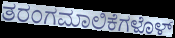
ತರಂಗಮಾಲಿಕೆಗಳೊಳ್